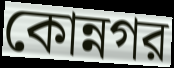
কোন্নগর